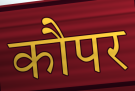
कौपर